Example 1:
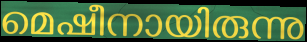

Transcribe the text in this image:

മെഷീനായിരുന്നു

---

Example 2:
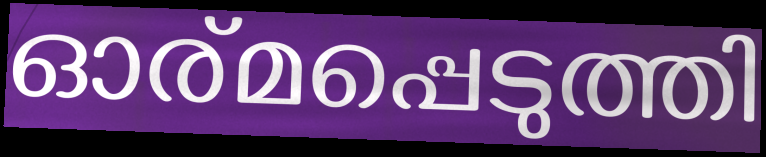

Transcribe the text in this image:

ഓര്മപ്പെടുത്തി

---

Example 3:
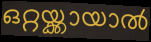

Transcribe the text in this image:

ഒറ്റയ്ക്കായാൽ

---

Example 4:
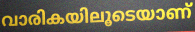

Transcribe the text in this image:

വാരികയിലൂടെയാണ്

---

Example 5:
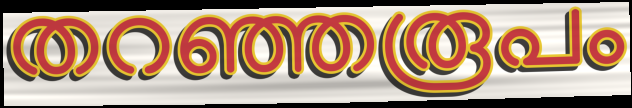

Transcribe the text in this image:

തറഞ്ഞരൂപം